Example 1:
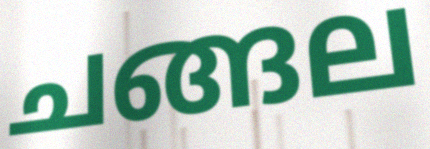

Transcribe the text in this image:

ചങ്ങല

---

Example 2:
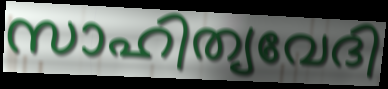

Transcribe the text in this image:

സാഹിത്യവേദി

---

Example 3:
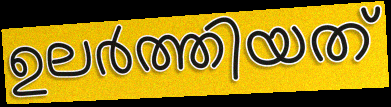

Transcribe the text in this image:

ഉലർത്തിയത്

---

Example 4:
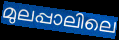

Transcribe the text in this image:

മുലപ്പാലിലെ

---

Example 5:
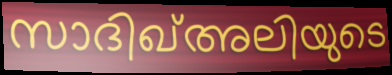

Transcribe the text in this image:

സാദിഖ്അലിയുടെ